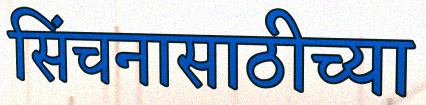
सिंचनासाठीच्या